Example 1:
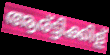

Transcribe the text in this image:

ആര്ട്ടിക്കിള്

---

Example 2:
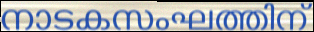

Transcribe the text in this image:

നാടകസംഘത്തിന്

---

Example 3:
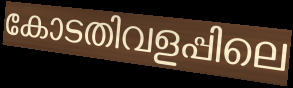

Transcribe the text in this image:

കോടതിവളപ്പിലെ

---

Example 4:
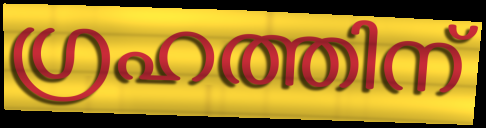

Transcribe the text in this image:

ഗ്രഹത്തിന്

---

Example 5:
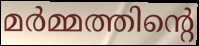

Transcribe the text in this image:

മർമ്മത്തിന്റെ